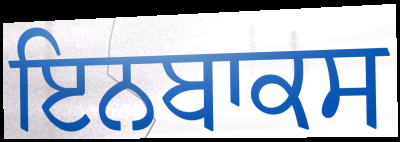
ਇਨਬਾਕਸ